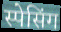
स्पेसिंग